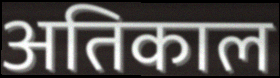
अतिकाल